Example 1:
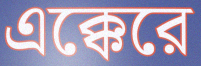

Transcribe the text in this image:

এক্কেরে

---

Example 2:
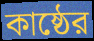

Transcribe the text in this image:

কাষ্ঠের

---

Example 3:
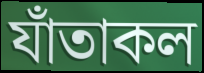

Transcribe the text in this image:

যাঁতাকল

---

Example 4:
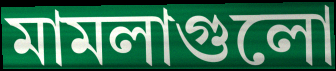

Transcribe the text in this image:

মামলাগুলো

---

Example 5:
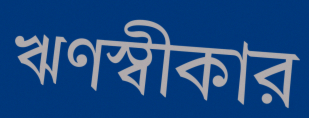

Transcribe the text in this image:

ঋণস্বীকার